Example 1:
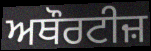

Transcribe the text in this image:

ਅਥੌਰਟੀਜ਼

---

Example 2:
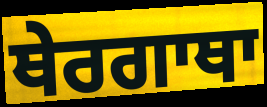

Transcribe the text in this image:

ਥੇਰਗਾਥਾ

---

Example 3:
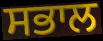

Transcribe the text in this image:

ਸਭਾਲ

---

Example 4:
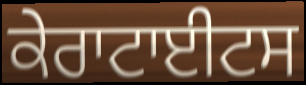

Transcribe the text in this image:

ਕੇਰਾਟਾਈਟਸ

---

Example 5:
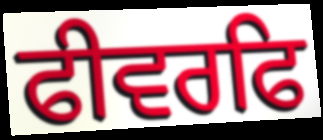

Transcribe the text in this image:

ਫੀਵਰਫਿ